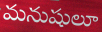
మనుషులూ